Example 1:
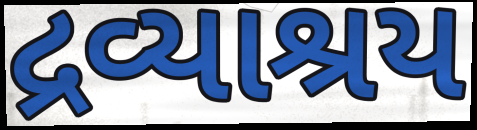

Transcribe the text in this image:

દ્રવ્યાશ્રય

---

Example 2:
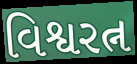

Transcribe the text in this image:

વિશ્વરત્ન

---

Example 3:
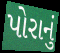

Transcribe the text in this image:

પોરાનું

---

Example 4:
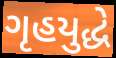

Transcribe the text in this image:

ગૃહયુદ્ધે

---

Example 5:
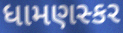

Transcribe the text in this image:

ધામણસ્કર